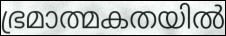
ഭ്രമാത്മകതയിൽ